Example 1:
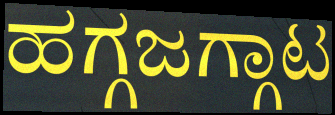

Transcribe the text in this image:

ಹಗ್ಗಜಗ್ಗಾಟ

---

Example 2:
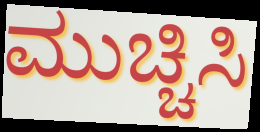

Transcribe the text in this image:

ಮುಚ್ಚಿಸಿ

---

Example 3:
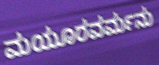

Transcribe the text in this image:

ಮಯೂರವರ್ಮನು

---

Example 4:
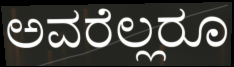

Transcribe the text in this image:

ಅವರೆಲ್ಲರೂ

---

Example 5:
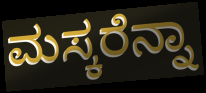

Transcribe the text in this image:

ಮಸ್ಕರೆನ್ನಾ